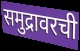
समुद्रावरची